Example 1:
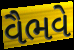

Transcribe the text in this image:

વૈભવે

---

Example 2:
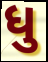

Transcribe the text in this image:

ધુ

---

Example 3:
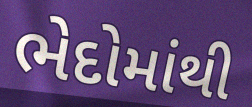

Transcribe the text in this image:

ભેદોમાંથી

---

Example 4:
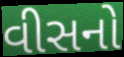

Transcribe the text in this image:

વીસનો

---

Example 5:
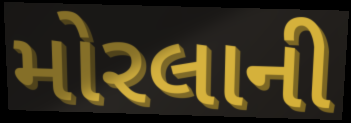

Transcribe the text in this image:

મોરલાની